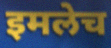
इमलेच